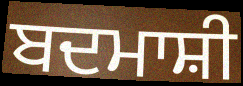
ਬਦਮਾਸ਼ੀ